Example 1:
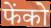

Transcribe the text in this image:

फेंको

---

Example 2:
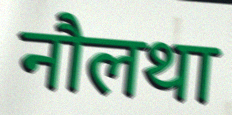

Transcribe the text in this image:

नौलथा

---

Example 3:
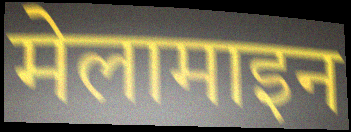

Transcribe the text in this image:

मेलामाइन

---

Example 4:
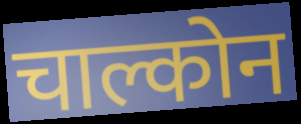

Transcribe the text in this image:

चाल्कोन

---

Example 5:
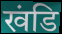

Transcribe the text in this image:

खंडि